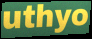
uthyo